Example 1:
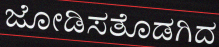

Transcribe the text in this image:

ಜೋಡಿಸತೊಡಗಿದ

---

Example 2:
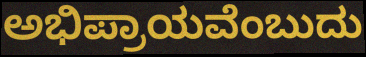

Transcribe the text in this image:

ಅಭಿಪ್ರಾಯವೆಂಬುದು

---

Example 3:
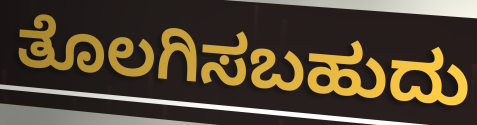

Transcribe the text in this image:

ತೊಲಗಿಸಬಹುದು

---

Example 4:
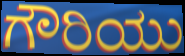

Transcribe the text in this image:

ಗೌರಿಯು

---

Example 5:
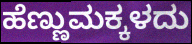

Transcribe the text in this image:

ಹೆಣ್ಣುಮಕ್ಕಳದು